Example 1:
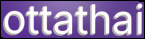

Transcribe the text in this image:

ottathai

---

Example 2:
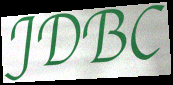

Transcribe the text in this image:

JDBC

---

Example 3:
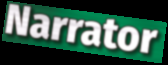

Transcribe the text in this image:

Narrator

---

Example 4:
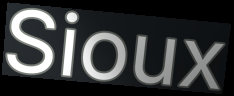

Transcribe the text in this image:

Sioux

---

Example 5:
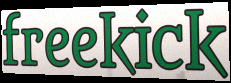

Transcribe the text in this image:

freekick